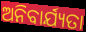
ଅନିବାର୍ଯ୍ୟତା